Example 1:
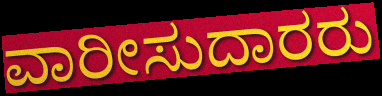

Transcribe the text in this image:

ವಾರೀಸುದಾರರು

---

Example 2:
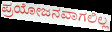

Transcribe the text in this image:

ಪ್ರಯೋಜನವಾಗಲಿಲ್ಲ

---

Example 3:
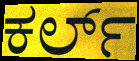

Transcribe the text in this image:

ಕರ್ಲ್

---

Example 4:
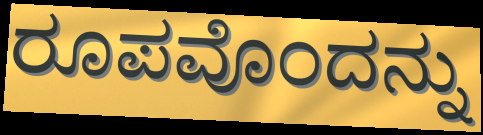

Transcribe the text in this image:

ರೂಪವೊಂದನ್ನು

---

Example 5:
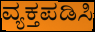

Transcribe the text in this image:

ವ್ಯಕ್ತಪಡಿಸಿ